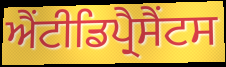
ਐਂਟੀਡਿਪ੍ਰੈਸੈਂਟਸ